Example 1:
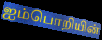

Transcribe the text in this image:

ஐம்பொறியின்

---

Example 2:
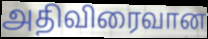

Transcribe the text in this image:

அதிவிரைவான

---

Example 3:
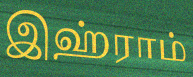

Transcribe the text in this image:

இஹ்ராம்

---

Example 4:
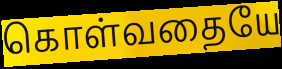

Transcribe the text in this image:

கொள்வதையே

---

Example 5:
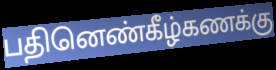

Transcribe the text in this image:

பதினெண்கீழ்கணக்கு